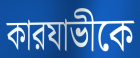
কারযাভীকে